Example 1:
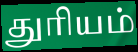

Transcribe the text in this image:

துரியம்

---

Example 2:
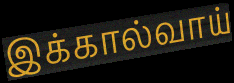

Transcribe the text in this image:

இக்கால்வாய்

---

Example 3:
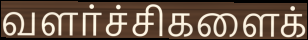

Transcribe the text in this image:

வளர்ச்சிகளைக்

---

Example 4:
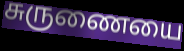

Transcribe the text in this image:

சுருணையை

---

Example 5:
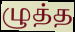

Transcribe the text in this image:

ழுத்த